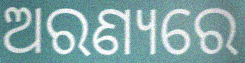
ଅରଣ୍ୟରେ